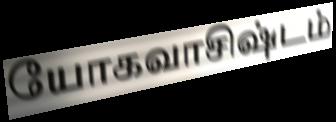
யோகவாசிஷ்டம்